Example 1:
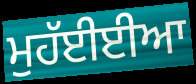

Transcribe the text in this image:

ਮੁਹੱਈਈਆ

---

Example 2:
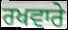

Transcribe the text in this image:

ਰਖਵਾਰੇ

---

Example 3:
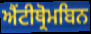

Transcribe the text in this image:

ਐਂਟੀਥ੍ਰੋਮਬਿਨ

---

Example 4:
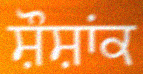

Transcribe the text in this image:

ਸ਼ੌਸ਼ਾਂਕ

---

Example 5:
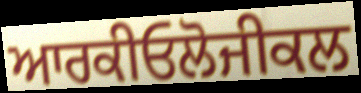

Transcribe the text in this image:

ਆਰਕੀਓਲੋਜੀਕਲ